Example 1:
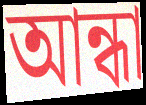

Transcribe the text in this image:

আন্ধা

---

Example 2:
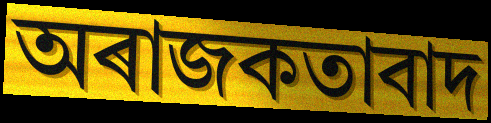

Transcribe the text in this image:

অৰাজকতাবাদ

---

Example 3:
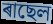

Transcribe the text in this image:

ৰাছেল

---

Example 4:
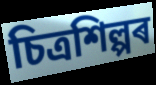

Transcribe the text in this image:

চিত্ৰশিল্পৰ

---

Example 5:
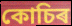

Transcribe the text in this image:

কোচিৰ